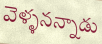
వెళ్ళనన్నాడు